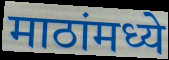
माठांमध्ये